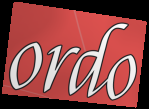
ordo